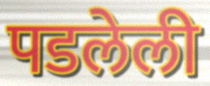
पडलेली